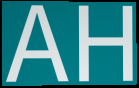
AH